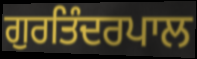
ਗੁਰਤਿੰਦਰਪਾਲ